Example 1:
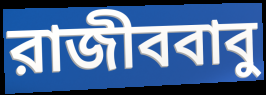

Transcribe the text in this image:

রাজীববাবু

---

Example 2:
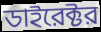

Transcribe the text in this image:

ডাইরেক্টর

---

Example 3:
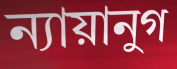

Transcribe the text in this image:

ন্যায়ানুগ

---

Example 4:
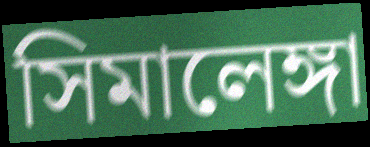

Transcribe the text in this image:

সিমালেঙ্গা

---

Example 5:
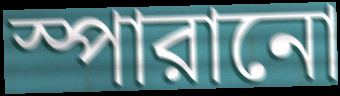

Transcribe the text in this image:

স্পারানো